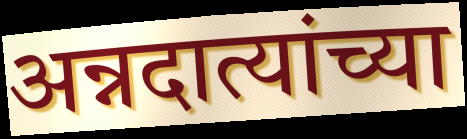
अन्नदात्यांच्या